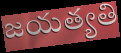
జయత్యతి